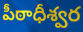
పీఠాధీశ్వర